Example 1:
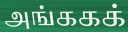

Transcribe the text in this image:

அங்ககக்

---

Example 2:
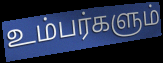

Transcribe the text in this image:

உம்பர்களும்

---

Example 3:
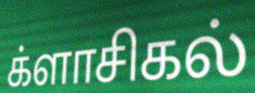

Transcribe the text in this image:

க்ளாசிகல்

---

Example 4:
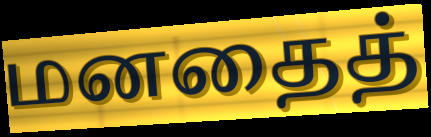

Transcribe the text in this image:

மனதைத்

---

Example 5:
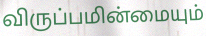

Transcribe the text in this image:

விருப்பமின்மையும்